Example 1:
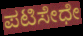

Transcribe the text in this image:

ಪಟಿಸೇಧೇ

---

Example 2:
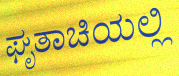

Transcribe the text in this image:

ಘೃತಾಚಿಯಲ್ಲಿ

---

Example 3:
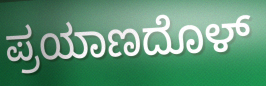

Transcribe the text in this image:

ಪ್ರಯಾಣದೊಳ್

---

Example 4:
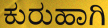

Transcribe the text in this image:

ಕುರುಹಾಗಿ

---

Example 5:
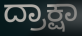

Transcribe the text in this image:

ದ್ರಾಕ್ಷಾ